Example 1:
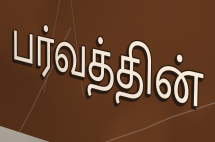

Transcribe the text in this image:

பர்வத்தின்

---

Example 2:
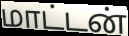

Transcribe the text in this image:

மாட்டன்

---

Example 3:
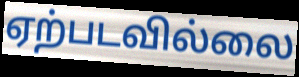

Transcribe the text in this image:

ஏற்படவில்லை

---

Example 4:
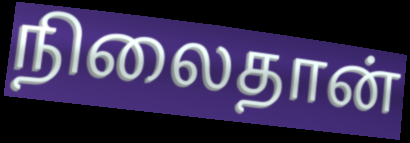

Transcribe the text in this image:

நிலைதான்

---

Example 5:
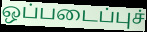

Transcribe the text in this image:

ஒப்படைப்புச்